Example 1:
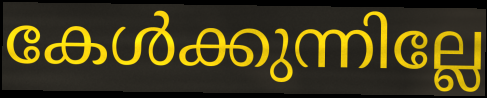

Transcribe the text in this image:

കേൾക്കുന്നില്ലേ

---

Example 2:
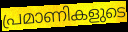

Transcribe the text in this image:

പ്രമാണികളുടെ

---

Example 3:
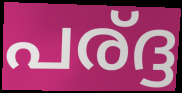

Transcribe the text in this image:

പര്ദ്ദ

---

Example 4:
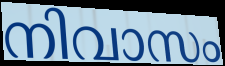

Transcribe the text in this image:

നിവാസം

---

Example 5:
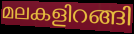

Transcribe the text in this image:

മലകളിറങ്ങി